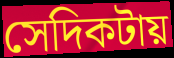
সেদিকটায়